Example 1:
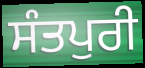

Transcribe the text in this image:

ਸੰਤਪੁਰੀ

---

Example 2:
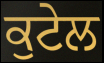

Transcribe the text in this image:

ਕੁਟੇਲ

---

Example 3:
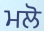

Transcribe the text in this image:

ਮਲੋ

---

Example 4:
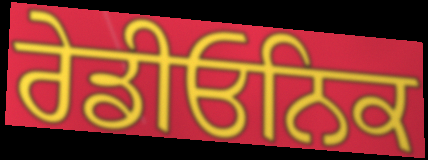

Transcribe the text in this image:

ਰੇਡੀਓਨਿਕ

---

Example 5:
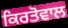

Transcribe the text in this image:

ਕਿਰਤੋਵਾਲ